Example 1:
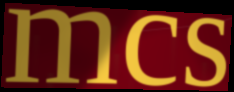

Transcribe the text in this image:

mcs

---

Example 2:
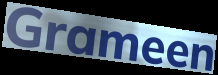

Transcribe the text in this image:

Grameen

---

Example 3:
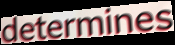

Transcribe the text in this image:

determines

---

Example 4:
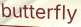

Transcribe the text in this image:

butterfly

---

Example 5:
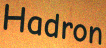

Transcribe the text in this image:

Hadron